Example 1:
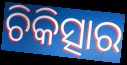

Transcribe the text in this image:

ଚିକିତ୍ସାର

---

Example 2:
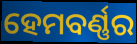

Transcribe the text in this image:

ହେମବର୍ଣ୍ଣର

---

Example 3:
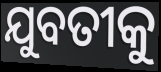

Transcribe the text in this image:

ଯୁବତୀକୁ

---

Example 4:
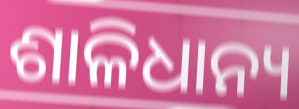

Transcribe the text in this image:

ଶାଳିଧାନ୍ୟ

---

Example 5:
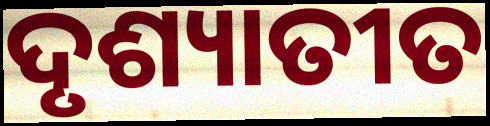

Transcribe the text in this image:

ଦୃଶ୍ୟାତୀତ